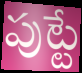
పుట్టే